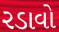
રડાવો